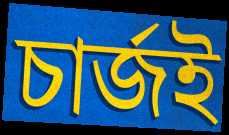
চার্জই